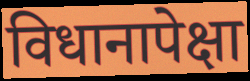
विधानापेक्षा